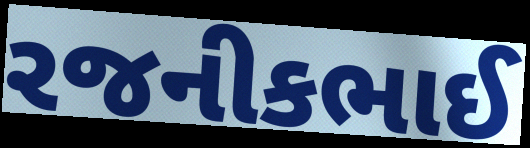
રજનીકભાઈ